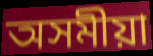
অসমীয়া